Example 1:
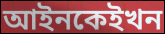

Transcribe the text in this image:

আইনকেইখন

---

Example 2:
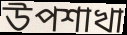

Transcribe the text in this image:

উপশাখা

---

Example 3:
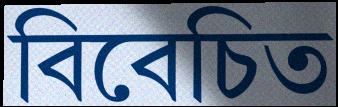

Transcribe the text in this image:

বিবেচিত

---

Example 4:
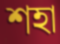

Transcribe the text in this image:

শহা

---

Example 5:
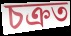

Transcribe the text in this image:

চক্ৰত